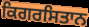
ਕਿਗਰਸਿਤਾਨ